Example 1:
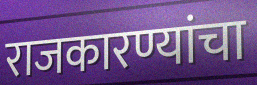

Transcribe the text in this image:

राजकारण्यांचा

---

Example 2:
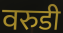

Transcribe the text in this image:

वरुडी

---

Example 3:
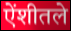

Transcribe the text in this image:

ऐंशीतले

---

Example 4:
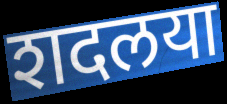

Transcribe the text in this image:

शदलया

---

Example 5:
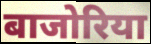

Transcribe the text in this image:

बाजोरिया